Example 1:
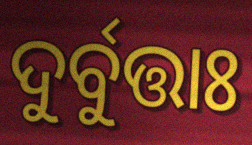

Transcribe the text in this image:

ଦୁର୍ବୁତ୍ତାଃ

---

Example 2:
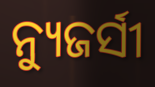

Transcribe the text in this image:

ନ୍ୟୁଜର୍ସୀ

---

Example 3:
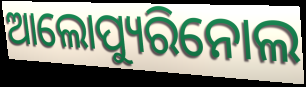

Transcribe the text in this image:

ଆଲୋପ୍ୟୁରିନୋଲ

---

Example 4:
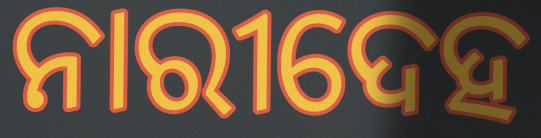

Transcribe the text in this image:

ନାରୀଦେହ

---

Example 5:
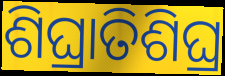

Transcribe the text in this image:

ଶିଘ୍ରାତିଶିଘ୍ର